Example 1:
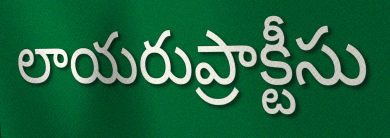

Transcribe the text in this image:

లాయరుప్రాక్టీసు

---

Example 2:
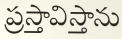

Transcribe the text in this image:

ప్రస్తావిస్తాను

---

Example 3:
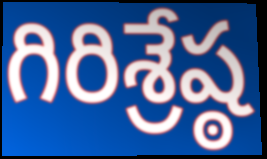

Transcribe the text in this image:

గిరిశ్రేష్ఠ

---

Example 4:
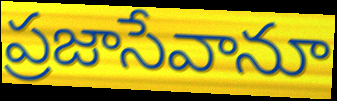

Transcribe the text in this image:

ప్రజాసేవానూ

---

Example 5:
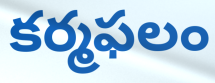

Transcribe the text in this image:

కర్మఫలం